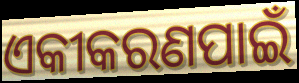
ଏକୀକରଣପାଇଁ